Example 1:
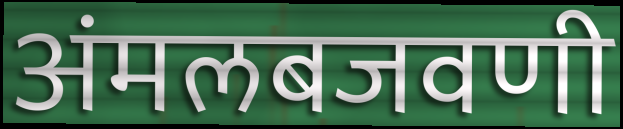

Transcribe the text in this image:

अंमलबजवणी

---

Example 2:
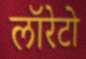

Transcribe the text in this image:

लॉरेटो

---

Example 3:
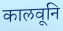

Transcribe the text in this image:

कालवूनि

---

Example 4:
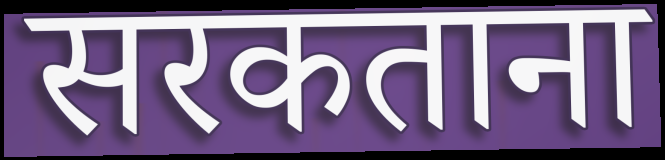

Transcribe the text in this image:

सरकताना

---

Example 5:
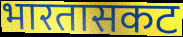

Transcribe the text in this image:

भारतासकट